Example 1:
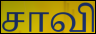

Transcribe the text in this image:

சாவி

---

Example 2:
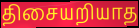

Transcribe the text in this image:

திசையறியாத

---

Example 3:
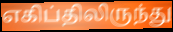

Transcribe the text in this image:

எகிப்திலிருந்து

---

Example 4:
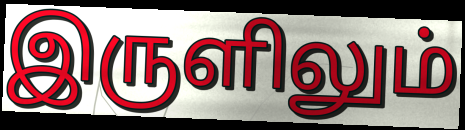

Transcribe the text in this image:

இருளிலும்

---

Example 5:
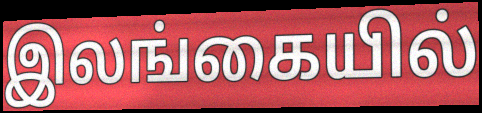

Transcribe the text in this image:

இலங்கையில்